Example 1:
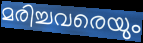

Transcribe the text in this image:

മരിച്ചവരെയും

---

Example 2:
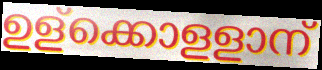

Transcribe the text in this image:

ഉള്ക്കൊളളാന്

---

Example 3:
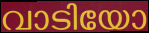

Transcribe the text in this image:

വാടിയോ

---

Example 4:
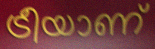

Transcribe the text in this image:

ട്രീയാണ്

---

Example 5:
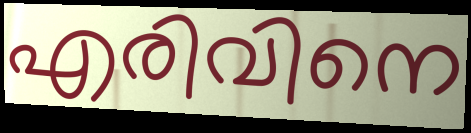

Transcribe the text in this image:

എരിവിനെ